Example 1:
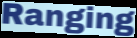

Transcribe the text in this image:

Ranging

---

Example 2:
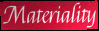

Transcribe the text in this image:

Materiality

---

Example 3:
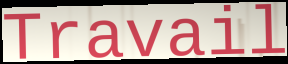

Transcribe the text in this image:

Travail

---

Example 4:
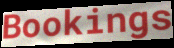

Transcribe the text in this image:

Bookings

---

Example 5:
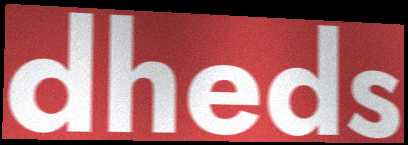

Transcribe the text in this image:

dheds